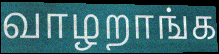
வாழறாங்க